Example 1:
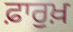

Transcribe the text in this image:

ਫ਼ਾਰੁਖ਼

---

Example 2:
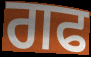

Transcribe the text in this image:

ਗਫ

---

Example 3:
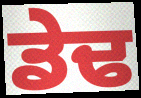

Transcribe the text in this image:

ਡੇਢ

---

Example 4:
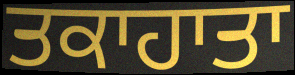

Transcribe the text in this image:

ਤਕਾਹਾਤਾ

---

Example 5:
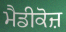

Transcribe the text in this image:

ਮੈਡੀਕੋਜ਼